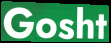
Gosht